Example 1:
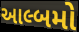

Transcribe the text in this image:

આલ્બમો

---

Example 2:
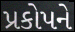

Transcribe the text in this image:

પ્રકોપને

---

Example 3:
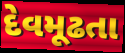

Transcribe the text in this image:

દેવમૂઢતા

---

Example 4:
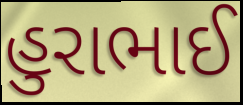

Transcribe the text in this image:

હુરાભાઈ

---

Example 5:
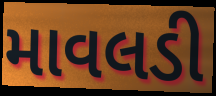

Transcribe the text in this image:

માવલડી